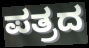
ಪತ್ರದ